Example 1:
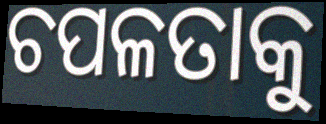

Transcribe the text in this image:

ଚପଳତାକୁ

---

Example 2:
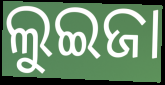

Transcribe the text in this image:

ଲୁଇଜା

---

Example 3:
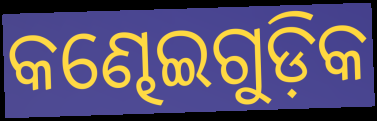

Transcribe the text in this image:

କଣ୍ଢେଇଗୁଡ଼ିକ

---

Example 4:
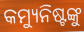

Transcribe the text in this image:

କମ୍ୟୁନିଷ୍ଟଙ୍କୁ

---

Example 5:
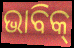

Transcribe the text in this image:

ଭାବିକ୍